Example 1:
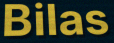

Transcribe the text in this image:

Bilas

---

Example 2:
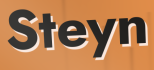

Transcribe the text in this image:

Steyn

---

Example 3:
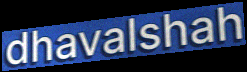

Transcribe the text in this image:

dhavalshah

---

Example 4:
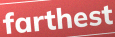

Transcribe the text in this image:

farthest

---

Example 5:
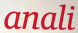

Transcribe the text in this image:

anali